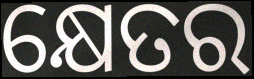
କ୍ଷେତର